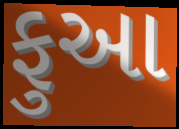
ફુઆ